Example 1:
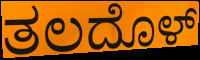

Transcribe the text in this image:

ತಲದೊಳ್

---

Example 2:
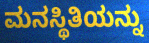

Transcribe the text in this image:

ಮನಸ್ಥಿತಿಯನ್ನು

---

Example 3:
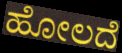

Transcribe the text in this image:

ಹೋಲದೆ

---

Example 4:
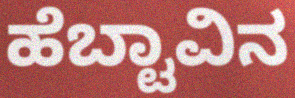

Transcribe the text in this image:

ಹೆಬ್ಟಾವಿನ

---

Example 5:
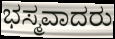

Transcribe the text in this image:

ಭಸ್ಮವಾದರು